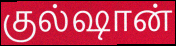
குல்ஷான்